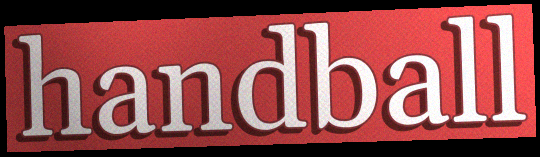
handball